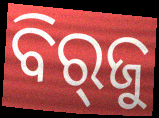
ବିର୍‌ଜୁ